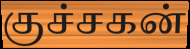
குச்சகன்